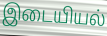
இடையியல்